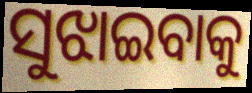
ସୁଝାଇବାକୁ